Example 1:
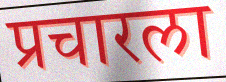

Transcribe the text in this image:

प्रचारला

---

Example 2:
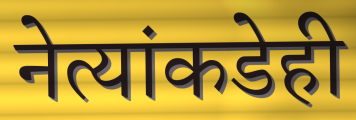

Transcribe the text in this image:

नेत्यांकडेही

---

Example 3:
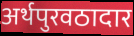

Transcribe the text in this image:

अर्थपुरवठादार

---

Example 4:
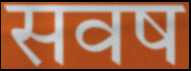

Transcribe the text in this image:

सवष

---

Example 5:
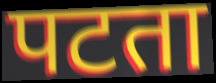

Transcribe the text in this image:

पटता